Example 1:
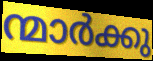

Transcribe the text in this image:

ന്മാർക്കു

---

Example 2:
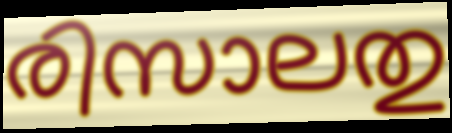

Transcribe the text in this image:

രിസാലതു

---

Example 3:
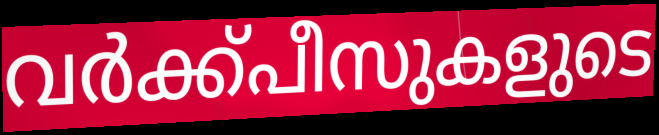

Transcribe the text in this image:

വർക്ക്പീസുകളുടെ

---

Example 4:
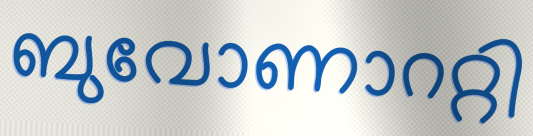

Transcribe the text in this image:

ബുവോണാററ്റി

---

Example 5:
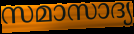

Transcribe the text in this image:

സമാസാദ്യ